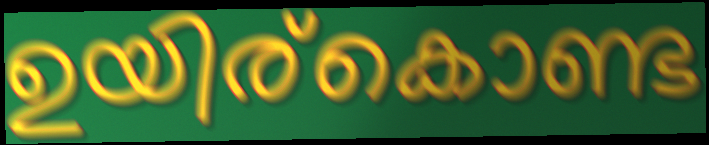
ഉയിര്കൊണ്ട